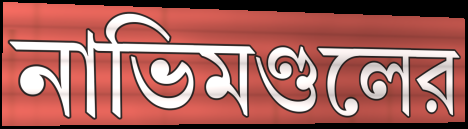
নাভিমণ্ডলের